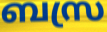
ബസ്ര